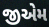
જીએમ